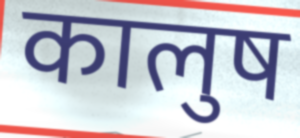
कालुष